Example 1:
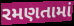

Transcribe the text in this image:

રમણતામાં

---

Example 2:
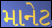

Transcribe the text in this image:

માનેટ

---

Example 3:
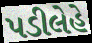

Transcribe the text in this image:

પડીલેહે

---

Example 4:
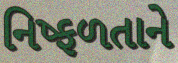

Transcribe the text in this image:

નિષ્ફળતાને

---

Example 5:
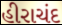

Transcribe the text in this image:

હીરાચંદ